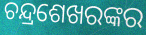
ଚନ୍ଦ୍ରଶେଖରଙ୍କର